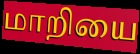
மாறியை